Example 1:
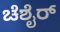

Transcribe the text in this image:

ಚೆಶೈರ್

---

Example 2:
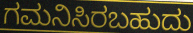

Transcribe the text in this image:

ಗಮನಿಸಿರಬಹುದು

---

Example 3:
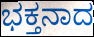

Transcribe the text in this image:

ಭಕ್ತನಾದ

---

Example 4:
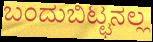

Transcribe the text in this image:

ಬಂದುಬಿಟ್ಟನಲ್ಲ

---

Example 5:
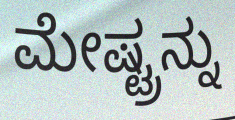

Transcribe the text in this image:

ಮೇಷ್ಟ್ರನ್ನು